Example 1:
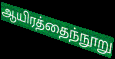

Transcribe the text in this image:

ஆயிரத்தைந்நூறு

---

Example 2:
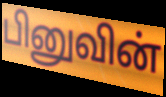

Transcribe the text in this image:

பினுவின்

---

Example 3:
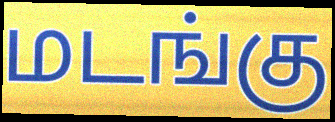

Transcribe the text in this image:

மடங்கு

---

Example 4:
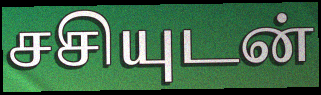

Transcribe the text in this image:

சசியுடன்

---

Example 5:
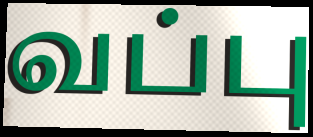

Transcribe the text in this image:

வப்பு